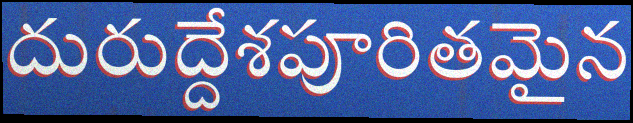
దురుద్దేశపూరితమైన